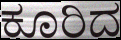
ಕೂರಿದ